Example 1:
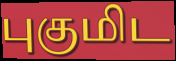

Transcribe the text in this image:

புகுமிட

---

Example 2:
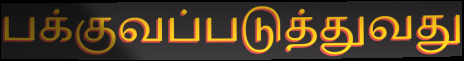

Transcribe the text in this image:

பக்குவப்படுத்துவது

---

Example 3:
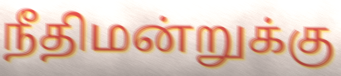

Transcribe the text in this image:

நீதிமன்றுக்கு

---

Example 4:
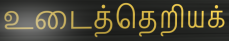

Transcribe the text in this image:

உடைத்தெறியக்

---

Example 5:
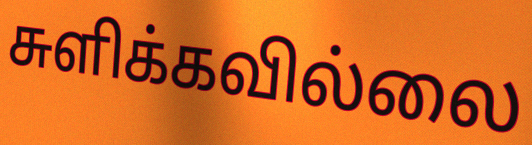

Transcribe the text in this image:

சுளிக்கவில்லை